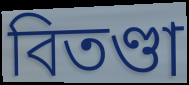
বিতণ্ডা